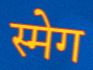
स्मेग